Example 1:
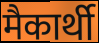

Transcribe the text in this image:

मैकार्थी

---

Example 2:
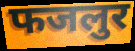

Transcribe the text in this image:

फजलुर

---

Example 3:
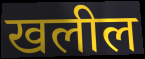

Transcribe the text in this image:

खलील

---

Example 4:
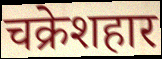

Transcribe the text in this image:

चक्रेशहार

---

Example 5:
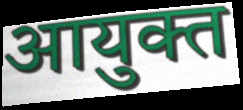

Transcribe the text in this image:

आयुक्‍त